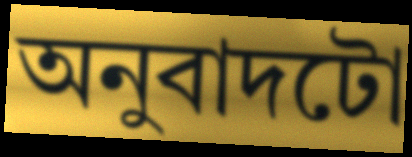
অনুবাদটো